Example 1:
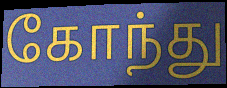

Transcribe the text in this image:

கோந்து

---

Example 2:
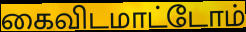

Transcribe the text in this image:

கைவிடமாட்டோம்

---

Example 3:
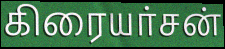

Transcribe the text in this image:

கிரையர்சன்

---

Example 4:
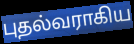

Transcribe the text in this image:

புதல்வராகிய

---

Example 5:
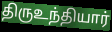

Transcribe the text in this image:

திருஉந்தியார்